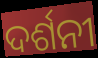
ଦର୍ଶନୀ